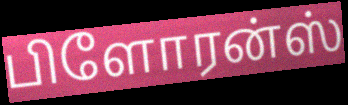
பிளோரன்ஸ்